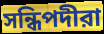
সন্ধিপদীরা